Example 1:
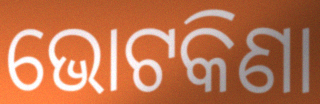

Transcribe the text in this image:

ଭୋଟକିଣା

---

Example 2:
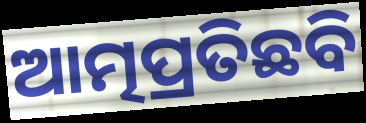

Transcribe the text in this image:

ଆତ୍ମପ୍ରତିଛବି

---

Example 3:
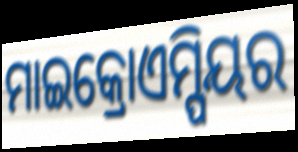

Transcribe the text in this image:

ମାଇକ୍ରୋଏମ୍ପିୟର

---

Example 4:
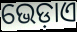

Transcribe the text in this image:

ଭେଡ଼ାଏ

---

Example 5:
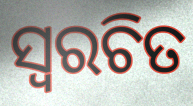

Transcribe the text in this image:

ସ୍ୱରଚିତ